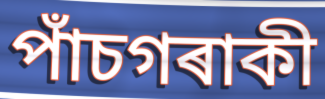
পাঁচগৰাকী